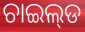
ଚାଇଲ୍‌ଡ